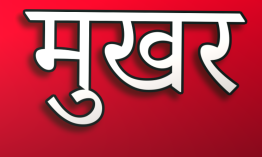
मुखर